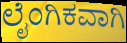
ಲೈಂಗಿಕವಾಗಿ